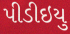
પીડીઇયુ